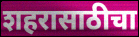
शहरासाठीचा